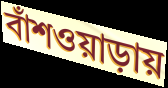
বাঁশওয়াড়ায়